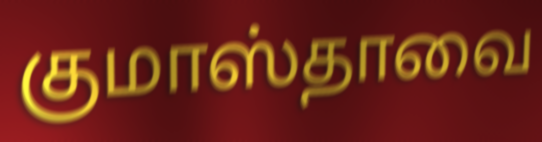
குமாஸ்தாவை